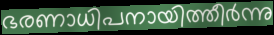
ഭരണാധിപനായിത്തീർന്നു